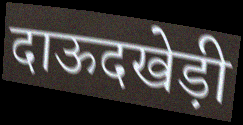
दाऊदखेड़ी